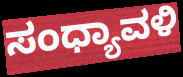
ಸಂಧ್ಯಾವಳಿ